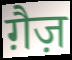
ग़ैज़